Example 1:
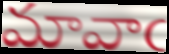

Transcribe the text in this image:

మావాఁ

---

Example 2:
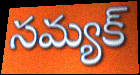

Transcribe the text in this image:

సమ్యక్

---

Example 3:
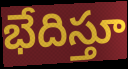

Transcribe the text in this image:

భేదిస్తూ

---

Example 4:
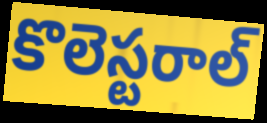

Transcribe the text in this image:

కొలెస్టరాల్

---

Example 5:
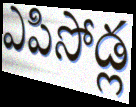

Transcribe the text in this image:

ఎపిసోడ్ల